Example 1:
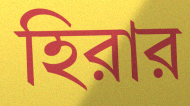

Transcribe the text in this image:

হিরার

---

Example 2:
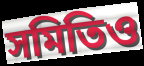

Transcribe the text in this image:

সমিতিও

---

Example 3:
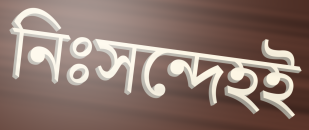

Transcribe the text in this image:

নিঃসন্দেহই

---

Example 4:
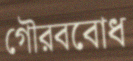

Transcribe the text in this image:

গৌরববোধ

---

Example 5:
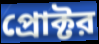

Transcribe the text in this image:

প্রোক্টর